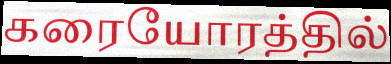
கரையோரத்தில்